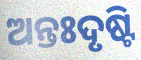
ଅନ୍ତଃଦୃଷ୍ଟି